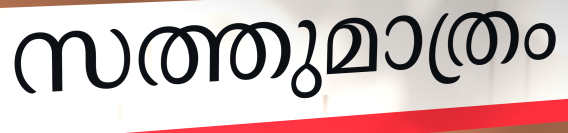
സത്തുമാത്രം